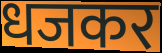
धजकर